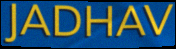
JADHAV